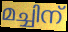
മച്ചിന്